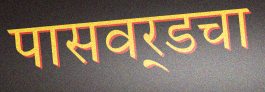
पासवर्डचा